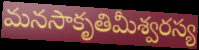
మనసాకృతిమీశ్వరస్య